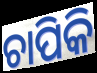
ଚାପିକି